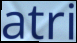
atri